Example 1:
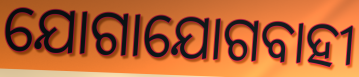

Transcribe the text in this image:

ଯୋଗାଯୋଗବାହୀ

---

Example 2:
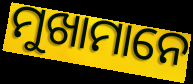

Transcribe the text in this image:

ମୁଖାମାନେ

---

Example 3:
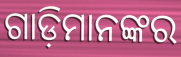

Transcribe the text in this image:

ଗାଡ଼ିମାନଙ୍କର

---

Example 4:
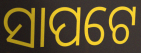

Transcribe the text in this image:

ସାପଟେ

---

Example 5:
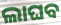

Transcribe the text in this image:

ଲାଘବ